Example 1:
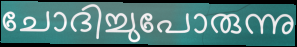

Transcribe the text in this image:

ചോദിച്ചുപോരുന്നു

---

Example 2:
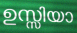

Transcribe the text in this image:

ഉസ്സിയാ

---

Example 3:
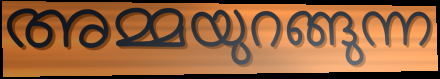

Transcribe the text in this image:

അമ്മയുറങ്ങുന്ന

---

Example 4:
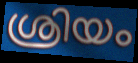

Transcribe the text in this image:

ശ്രിയം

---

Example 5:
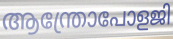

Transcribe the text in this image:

ആന്ത്രോപോളജി